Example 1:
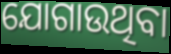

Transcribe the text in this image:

ଯୋଗାଉଥିବା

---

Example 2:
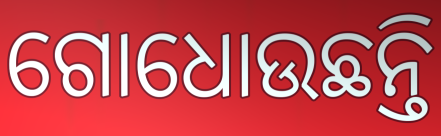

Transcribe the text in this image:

ଗୋଧୋଉଛନ୍ତି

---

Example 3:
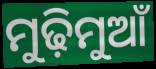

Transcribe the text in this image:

ମୁଢ଼ିମୁଆଁ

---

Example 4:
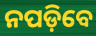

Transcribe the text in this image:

ନପଡ଼ିବେ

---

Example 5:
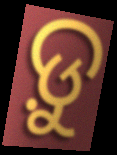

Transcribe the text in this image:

ଡ଼ୁ